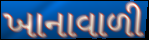
ખાનાવાળી